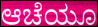
ಆಚೆಯೂ